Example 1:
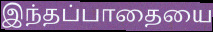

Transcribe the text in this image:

இந்தப்பாதையை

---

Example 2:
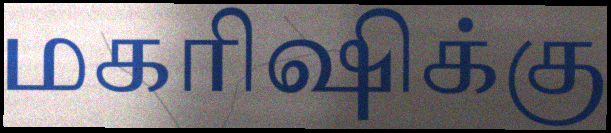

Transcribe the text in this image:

மகரிஷிக்கு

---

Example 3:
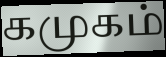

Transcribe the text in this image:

கமுகம்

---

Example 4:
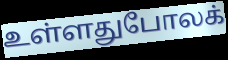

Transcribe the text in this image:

உள்ளதுபோலக்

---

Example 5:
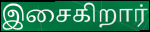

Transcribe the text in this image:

இசைகிறார்